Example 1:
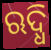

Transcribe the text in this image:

ଋଦ୍ଧି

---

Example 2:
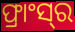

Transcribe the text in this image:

ଫ୍ରାଂସ୍‍ର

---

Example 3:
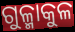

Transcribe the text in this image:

ଗୁଳ୍ମାକୁଳ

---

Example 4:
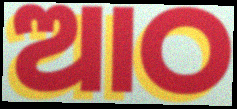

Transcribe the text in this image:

ଆଠ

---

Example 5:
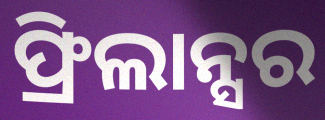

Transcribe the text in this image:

ଫ୍ରିଲାନ୍ସର